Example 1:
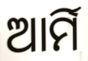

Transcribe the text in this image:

ଆର୍ମି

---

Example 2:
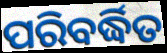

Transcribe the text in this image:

ପରିବର୍ଦ୍ଧିତ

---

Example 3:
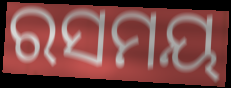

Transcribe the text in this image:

ରସମୟ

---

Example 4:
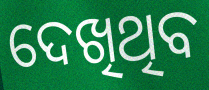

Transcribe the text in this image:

ଦେଖିଥିବ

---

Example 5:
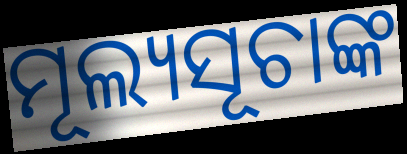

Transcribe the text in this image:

ମୂଲ୍ୟସୂଚାଙ୍କ